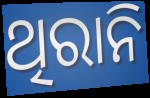
ଥିରାନି